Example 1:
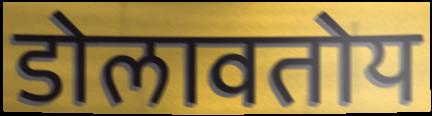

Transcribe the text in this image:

डोलावतोय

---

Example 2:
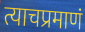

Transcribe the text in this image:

त्याचप्रमाणं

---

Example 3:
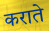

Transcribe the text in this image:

कराते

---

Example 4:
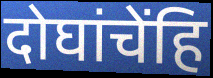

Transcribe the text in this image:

दोघांचेंहि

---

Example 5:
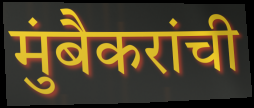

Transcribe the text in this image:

मुंबैकरांची